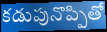
కడుపునొప్పితో